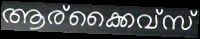
ആര്ക്കൈവ്സ്